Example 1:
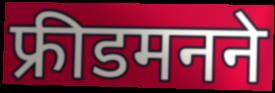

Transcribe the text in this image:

फ्रीडमनने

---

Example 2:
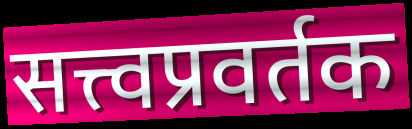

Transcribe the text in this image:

सत्त्वप्रवर्तक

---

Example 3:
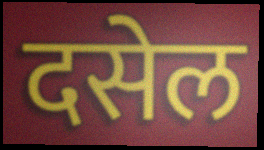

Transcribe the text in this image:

दसेल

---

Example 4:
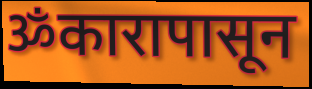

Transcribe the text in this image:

ॐकारापासून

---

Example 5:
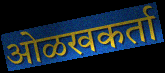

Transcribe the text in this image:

ओळखकर्ता